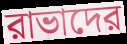
রাভাদের